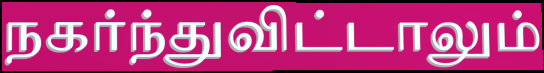
நகர்ந்துவிட்டாலும்